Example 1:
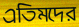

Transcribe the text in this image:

এতিমদের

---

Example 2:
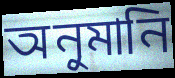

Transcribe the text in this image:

অনুমানি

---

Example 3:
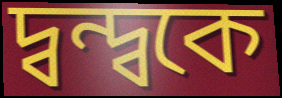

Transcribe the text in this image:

দ্বন্দ্বকে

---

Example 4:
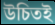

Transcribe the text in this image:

উচিতই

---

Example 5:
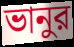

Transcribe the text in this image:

ভানুর